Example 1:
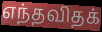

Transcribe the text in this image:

எந்தவிதக்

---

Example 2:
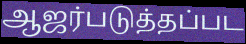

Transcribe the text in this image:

ஆஜர்படுத்தப்பட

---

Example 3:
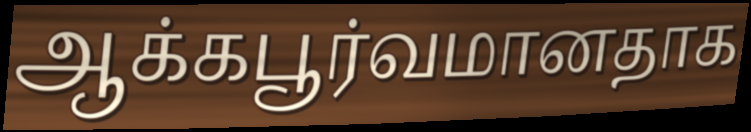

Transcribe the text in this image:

ஆக்கபூர்வமானதாக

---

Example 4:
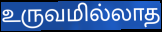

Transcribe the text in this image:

உருவமில்லாத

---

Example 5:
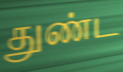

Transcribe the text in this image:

துண்ட